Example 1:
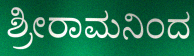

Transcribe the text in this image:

ಶ್ರೀರಾಮನಿಂದ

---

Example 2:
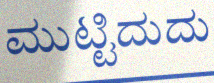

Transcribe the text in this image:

ಮುಟ್ಟಿದುದು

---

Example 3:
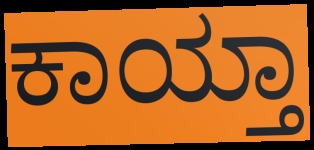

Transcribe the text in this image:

ಕಾಯ್ತಾ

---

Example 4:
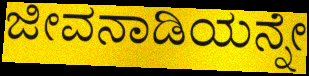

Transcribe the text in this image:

ಜೀವನಾಡಿಯನ್ನೇ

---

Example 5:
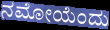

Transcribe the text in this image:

ನಮೋಯೆಂದು